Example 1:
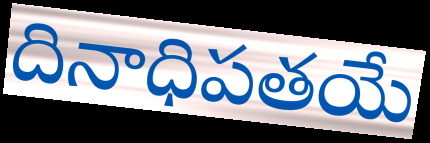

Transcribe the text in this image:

దినాధిపతయే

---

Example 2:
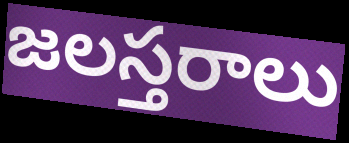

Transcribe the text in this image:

జలస్తరాలు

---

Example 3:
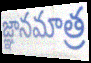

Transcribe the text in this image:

జ్ఞానమాత్ర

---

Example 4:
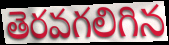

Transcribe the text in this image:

తెరవగలిగిన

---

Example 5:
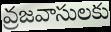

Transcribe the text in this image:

వ్రజవాసులకు